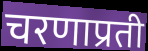
चरणाप्रती